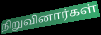
நிறுவினார்கள்